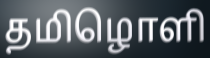
தமிழொளி